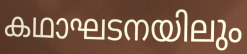
കഥാഘടനയിലും